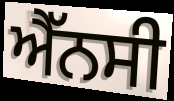
ਐੱਨਸੀ